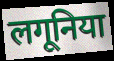
लगूनिया